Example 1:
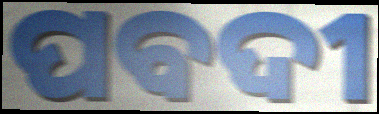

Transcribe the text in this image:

ପବଦୀ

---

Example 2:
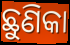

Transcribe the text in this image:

ଛୁଣିକା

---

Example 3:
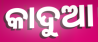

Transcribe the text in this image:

କାଦୁଆ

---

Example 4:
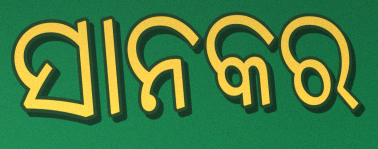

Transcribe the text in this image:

ସାନକର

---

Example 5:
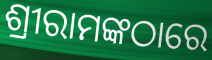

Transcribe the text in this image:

ଶ୍ରୀରାମଙ୍କଠାରେ